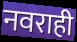
नवराही